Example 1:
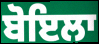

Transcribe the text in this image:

ਬੋਇਲਾ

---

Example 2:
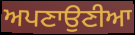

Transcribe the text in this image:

ਅਪਣਾਉਣੀਆ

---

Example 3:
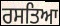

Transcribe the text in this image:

ਰਸਤਿਆ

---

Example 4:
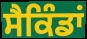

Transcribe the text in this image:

ਸੈਕਿੰਡਾਂ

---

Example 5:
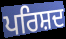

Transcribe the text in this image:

ਪਰਿਸ਼ਦ